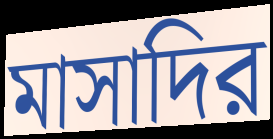
মাসাদির